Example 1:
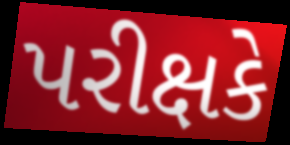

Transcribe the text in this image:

પરીક્ષકે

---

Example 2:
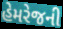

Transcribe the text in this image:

હેમરેજની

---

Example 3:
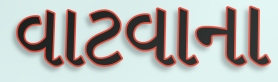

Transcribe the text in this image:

વાટવાના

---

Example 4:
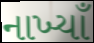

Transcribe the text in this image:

નાખ્યાઁ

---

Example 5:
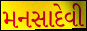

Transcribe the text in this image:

મનસાદેવી